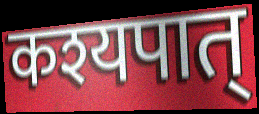
कश्यपात्